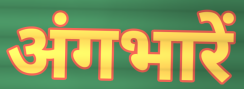
अंगभारें